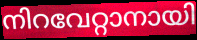
നിറവേറ്റാനായി